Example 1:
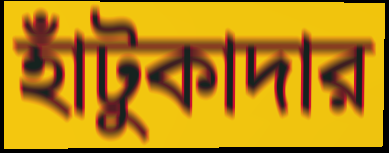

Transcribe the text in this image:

হাঁটুকাদার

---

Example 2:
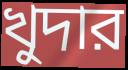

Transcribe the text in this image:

খুদার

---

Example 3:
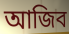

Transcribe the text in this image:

আজিব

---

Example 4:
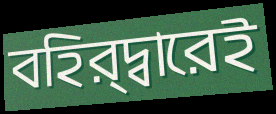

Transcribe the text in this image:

বহির্‌দ্বারেই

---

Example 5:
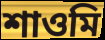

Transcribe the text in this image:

শাওমি